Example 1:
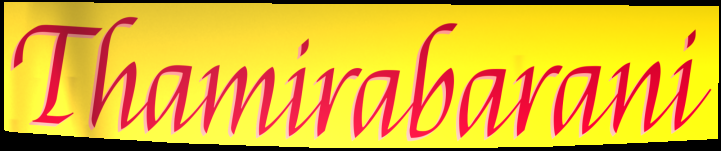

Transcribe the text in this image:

Thamirabarani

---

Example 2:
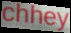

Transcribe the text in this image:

chhey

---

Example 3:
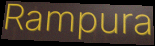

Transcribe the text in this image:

Rampura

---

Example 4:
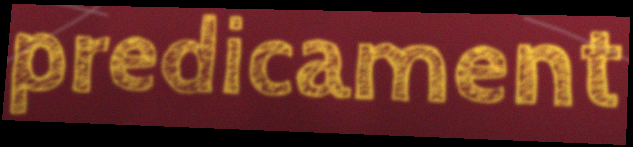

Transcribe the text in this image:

predicament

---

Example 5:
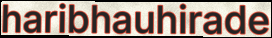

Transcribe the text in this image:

haribhauhirade